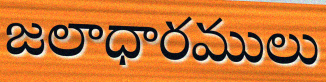
జలాధారములు